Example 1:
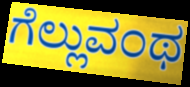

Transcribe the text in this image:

ಗೆಲ್ಲುವಂಥ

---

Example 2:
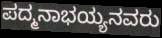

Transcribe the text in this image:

ಪದ್ಮನಾಭಯ್ಯನವರು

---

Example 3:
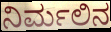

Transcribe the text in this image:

ನಿರ್ಮಲಿನ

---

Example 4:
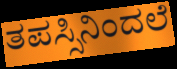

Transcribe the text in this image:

ತಪಸ್ಸಿನಿಂದಲೆ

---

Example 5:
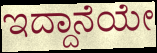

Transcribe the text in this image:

ಇದ್ದಾನೆಯೇ